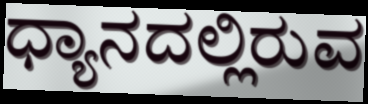
ಧ್ಯಾನದಲ್ಲಿರುವ